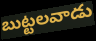
బుట్టలవాడు